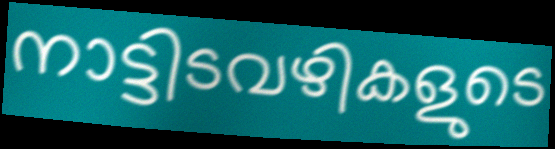
നാട്ടിടവഴികളുടെ